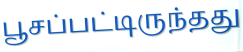
பூசப்பட்டிருந்தது